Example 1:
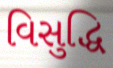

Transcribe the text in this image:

વિસુદ્ધિ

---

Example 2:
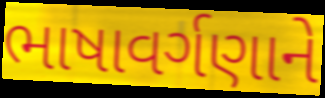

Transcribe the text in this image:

ભાષાવર્ગણાને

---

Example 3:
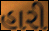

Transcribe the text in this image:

હારી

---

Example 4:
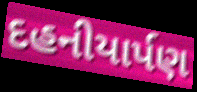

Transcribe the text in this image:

દહનીયાર્પણ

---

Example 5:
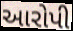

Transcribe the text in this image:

આરોપી